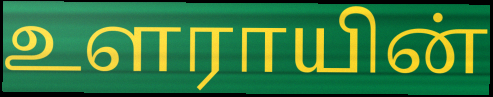
உளராயின்